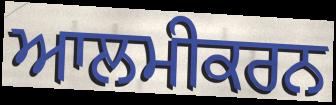
ਆਲਮੀਕਰਨ